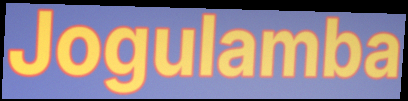
Jogulamba